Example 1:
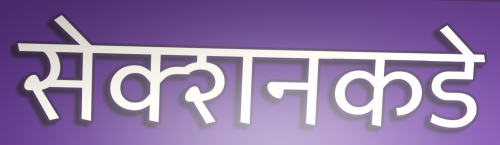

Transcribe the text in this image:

सेक्शनकडे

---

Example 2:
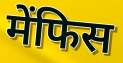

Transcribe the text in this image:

मेंफिस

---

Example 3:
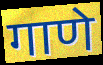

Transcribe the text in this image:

गाणे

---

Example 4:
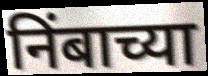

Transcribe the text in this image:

निंबाच्या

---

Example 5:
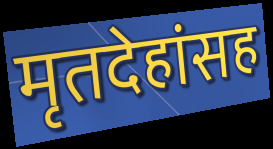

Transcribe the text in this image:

मृतदेहांसह